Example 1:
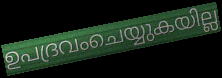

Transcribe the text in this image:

ഉപദ്രവംചെയ്യുകയില്ല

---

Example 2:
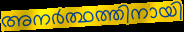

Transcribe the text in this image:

അനർത്ഥത്തിനായി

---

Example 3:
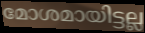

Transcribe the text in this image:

മോശമായിട്ടല്ല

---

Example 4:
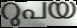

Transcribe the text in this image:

റുപയ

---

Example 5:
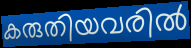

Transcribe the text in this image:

കരുതിയവരിൽ